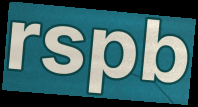
rspb